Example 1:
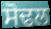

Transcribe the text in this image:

ਸੋਢਲ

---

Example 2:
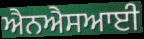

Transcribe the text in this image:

ਐਨਐਸਆਈ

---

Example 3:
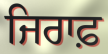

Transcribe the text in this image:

ਜਿਰਾਫ਼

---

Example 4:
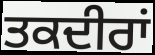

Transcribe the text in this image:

ਤਕਦੀਰਾਂ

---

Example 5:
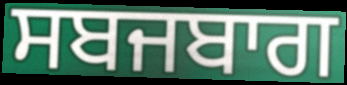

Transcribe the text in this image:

ਸਬਜਬਾਗ